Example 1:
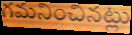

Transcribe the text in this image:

గమనించినట్లు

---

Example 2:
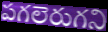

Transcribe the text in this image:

పగలెరుగని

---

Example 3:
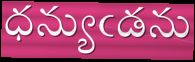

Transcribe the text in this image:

ధన్యుఁడను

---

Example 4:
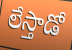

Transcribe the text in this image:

లేస్తాడో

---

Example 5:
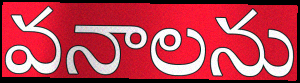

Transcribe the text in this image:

వనాలను